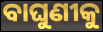
ବାଘୁଣୀକୁ